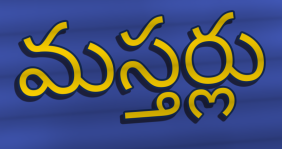
మస్తర్లు